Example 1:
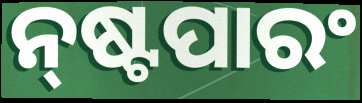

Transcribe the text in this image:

ନ୍‌ଷ୍ଟପାରଂ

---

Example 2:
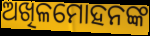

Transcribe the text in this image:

ଅଖିଳମୋହନଙ୍କ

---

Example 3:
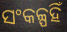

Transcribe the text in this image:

ସଂକଳ୍ପହିଁ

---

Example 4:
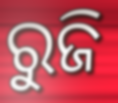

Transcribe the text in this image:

ରୁଜି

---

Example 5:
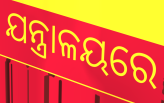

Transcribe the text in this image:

ଯନ୍ତ୍ରାଳୟରେ